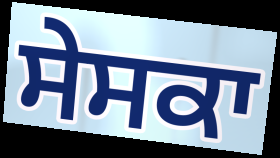
ਸੇਸਕਾ